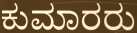
ಕುಮಾರರು